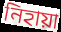
নিহায়া